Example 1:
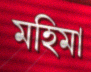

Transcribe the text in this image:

মহিমা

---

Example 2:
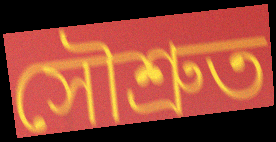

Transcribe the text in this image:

সৌশ্ৰুত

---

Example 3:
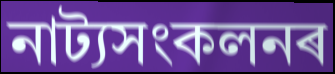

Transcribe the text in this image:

নাট্যসংকলনৰ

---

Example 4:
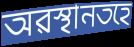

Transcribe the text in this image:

অৱস্থানতহে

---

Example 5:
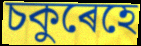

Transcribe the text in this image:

চকুৰেহে